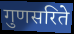
गुणसरिते